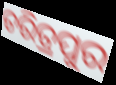
ଚରିତ୍ରପୁର